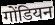
गोंडियन